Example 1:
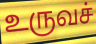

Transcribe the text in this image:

உருவச்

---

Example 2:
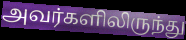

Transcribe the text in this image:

அவர்களிலிருந்து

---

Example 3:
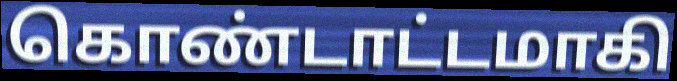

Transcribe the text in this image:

கொண்டாட்டமாகி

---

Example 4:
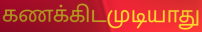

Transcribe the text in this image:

கணக்கிடமுடியாது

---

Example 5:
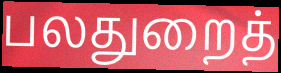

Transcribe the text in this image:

பலதுறைத்